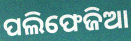
ପଲିଫେଜିଆ